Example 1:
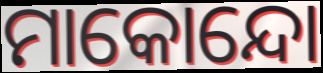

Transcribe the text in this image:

ମାକୋନ୍ଦୋ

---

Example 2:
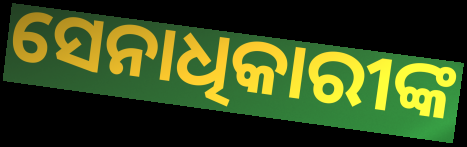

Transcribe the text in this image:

ସେନାଧିକାରୀଙ୍କ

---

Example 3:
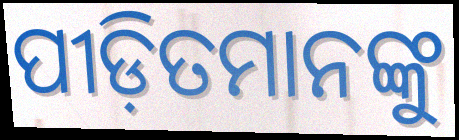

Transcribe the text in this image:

ପୀଡ଼ିତମାନଙ୍କୁ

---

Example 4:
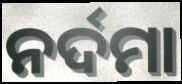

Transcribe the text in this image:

ନର୍ଦମା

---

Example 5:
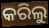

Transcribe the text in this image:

କରିଲୁ